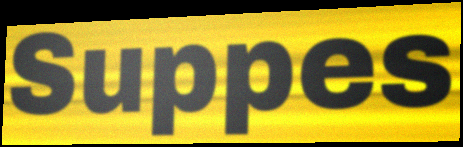
Suppes